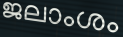
ജലാംശം